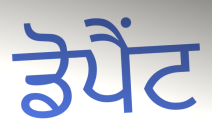
ਡੋਪੈਂਟ